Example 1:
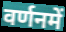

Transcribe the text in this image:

वर्णनमें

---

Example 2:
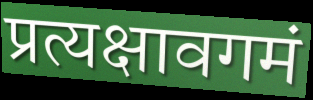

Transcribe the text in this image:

प्रत्यक्षावगमं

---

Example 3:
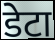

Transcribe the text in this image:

डेटा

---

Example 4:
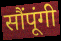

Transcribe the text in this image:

सौंपूंगी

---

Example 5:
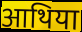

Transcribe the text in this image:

आथिया